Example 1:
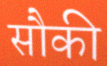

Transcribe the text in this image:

सौकी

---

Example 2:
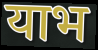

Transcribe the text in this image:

याभ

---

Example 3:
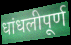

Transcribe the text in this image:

धांधलीपूर्ण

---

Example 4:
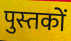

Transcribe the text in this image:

पुस्‍तकों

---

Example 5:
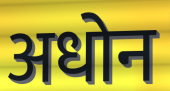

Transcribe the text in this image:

अधोन